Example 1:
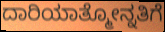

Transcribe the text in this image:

ದಾರಿಯಾತ್ಮೋನ್ನತಿಗೆ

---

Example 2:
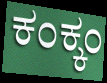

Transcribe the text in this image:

ಕಂಕ್ಕಂ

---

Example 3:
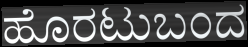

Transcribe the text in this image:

ಹೊರಟುಬಂದ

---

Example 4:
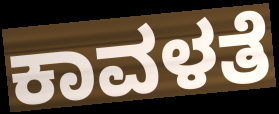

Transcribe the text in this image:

ಕಾವಳತೆ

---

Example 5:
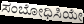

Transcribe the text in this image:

ಸಂಬೋಧಿಸಿಯೇ